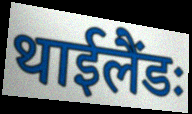
थाईलैंडः